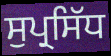
ਸੁਪ੍ਰਸਿੱਧ